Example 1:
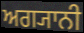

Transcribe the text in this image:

ਅਗ੍ਯਾਨੀ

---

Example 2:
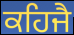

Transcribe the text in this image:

ਕਹਿਜੈ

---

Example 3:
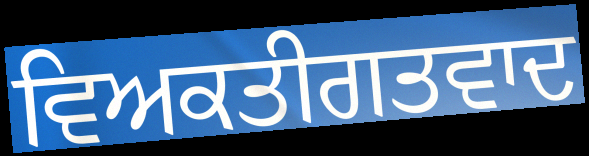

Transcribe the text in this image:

ਵਿਅਕਤੀਗਤਵਾਦ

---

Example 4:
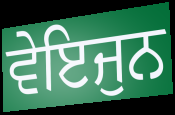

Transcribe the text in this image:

ਵੇਇਜੁਨ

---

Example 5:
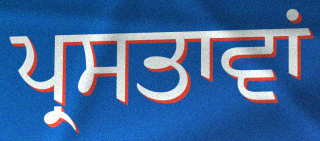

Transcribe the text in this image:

ਪ੍ਰਸਤਾਵਾਂ